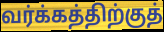
வர்க்கத்திற்குத்